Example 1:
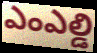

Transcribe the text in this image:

ఎంఎల్డి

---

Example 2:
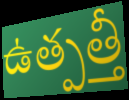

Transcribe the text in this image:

ఉత్పత్తీ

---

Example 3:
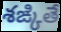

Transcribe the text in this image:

శఙ్కితే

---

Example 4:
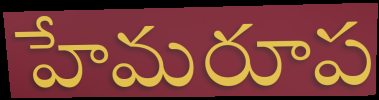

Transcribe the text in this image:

హేమరూప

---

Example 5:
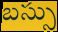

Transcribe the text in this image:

బస్సు